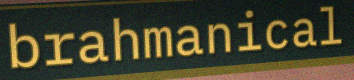
brahmanical